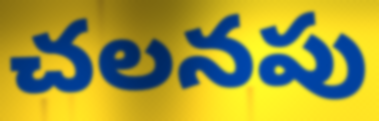
చలనపు